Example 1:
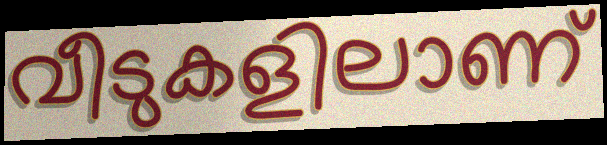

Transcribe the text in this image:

വീടുകളിലാണ്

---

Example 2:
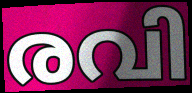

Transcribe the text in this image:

രവി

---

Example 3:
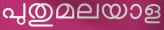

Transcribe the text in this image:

പുതുമലയാള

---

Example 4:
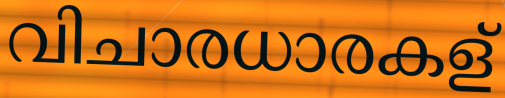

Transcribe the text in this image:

വിചാരധാരകള്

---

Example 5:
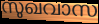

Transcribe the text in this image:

സുഖവാസ